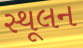
સ્થૂલન